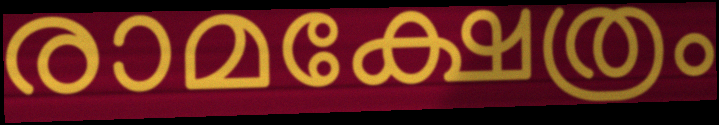
രാമക്ഷേത്രം